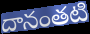
దానంతటి